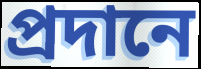
প্ৰদানে